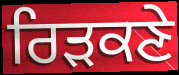
ਰਿੜਕਣੇ